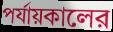
পর্যায়কালের